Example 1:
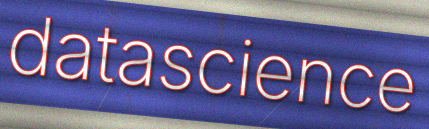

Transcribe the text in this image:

datascience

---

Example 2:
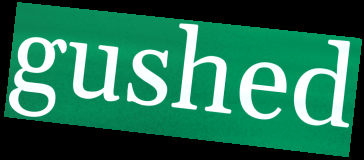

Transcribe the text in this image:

gushed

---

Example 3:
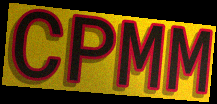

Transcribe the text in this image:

CPMM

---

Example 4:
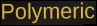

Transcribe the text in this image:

Polymeric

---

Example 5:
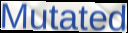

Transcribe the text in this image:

Mutated